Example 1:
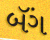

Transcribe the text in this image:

બૅંગ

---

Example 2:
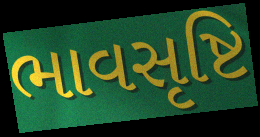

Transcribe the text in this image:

ભાવસૃષ્ટિ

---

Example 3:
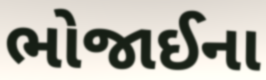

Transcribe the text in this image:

ભોજાઈના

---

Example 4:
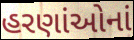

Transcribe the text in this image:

હરણાંઓનાં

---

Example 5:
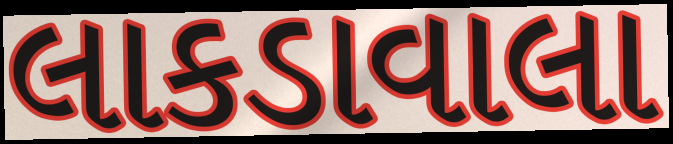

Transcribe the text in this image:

લાકડાવાલા